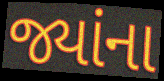
જ્યાંના